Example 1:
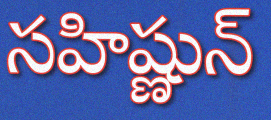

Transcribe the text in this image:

సహిష్ణున్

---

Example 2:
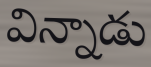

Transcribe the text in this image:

విన్నాడు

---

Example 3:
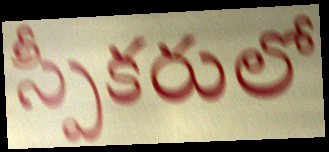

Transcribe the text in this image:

స్పీకరులో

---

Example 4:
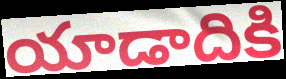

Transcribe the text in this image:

యాడాదికి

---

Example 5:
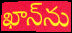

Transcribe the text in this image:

ఖాన్‌ను